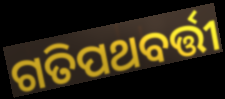
ଗତିପଥବର୍ତ୍ତୀ